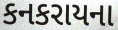
કનકરાયના